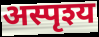
अस्पृश्य